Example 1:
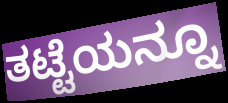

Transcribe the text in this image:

ತಟ್ಟೆಯನ್ನೂ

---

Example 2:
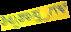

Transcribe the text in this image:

ಶಿಲ್ಪಶಾಸ್ತ್ರಗಳ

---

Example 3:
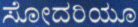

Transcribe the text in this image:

ಸೋದರಿಯೂ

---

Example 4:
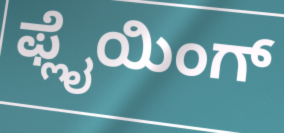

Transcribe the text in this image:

ಫ್ಲೈಯಿಂಗ್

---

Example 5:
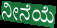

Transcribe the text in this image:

ನೀನೆಯೆ